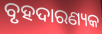
ବୃହଦାରଣ୍ୟକ